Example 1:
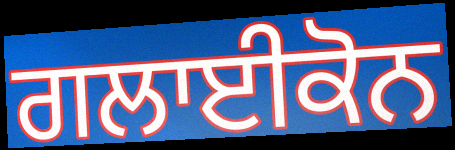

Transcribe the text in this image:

ਗਲਾਈਕੋਨ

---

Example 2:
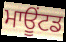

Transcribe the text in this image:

ਮਾਊਂਟਡ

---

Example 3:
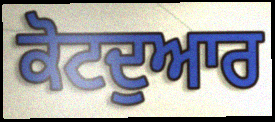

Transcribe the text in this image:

ਕੋਟਦੁਆਰ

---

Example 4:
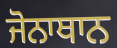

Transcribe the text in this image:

ਜੋਨਾਥਾਨ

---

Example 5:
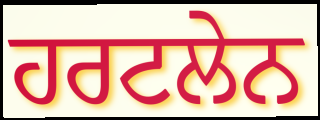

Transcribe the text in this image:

ਹਰਟਲੇਨ